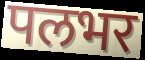
पलभर